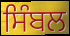
ਸਿੰਬਲ